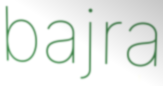
bajra